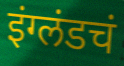
इंग्लंडचं